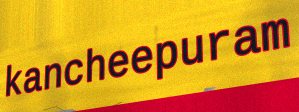
kancheepuram